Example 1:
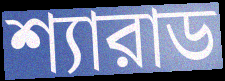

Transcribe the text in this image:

শ্যারাড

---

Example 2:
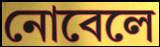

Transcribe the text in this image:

নোবেলে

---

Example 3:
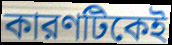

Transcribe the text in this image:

কারণটিকেই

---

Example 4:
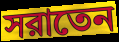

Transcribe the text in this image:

সরাতেন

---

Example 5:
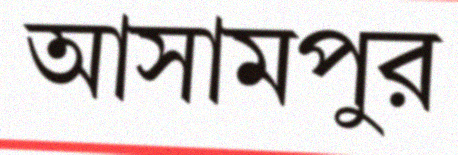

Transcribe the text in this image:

আসামপুর